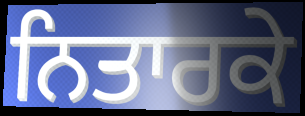
ਨਿਤਾਰਕੇ